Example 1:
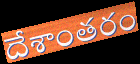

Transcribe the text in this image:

దేశాంతరం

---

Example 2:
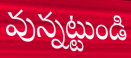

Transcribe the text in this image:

వున్నట్టుండి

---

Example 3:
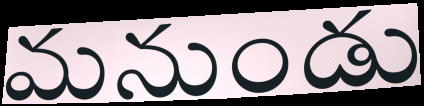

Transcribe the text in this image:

మనుండు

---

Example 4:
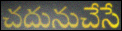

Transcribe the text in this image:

చదునుచేసే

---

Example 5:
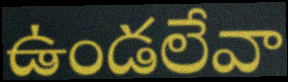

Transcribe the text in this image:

ఉండలేవా